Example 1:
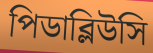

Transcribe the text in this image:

পিডাব্লিউসি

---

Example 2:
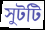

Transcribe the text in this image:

সুটটি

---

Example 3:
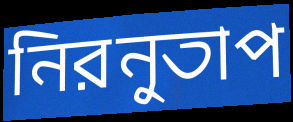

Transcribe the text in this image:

নিরনুতাপ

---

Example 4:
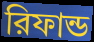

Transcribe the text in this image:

রিফান্ড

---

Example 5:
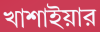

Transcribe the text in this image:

খাশাইয়ার